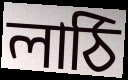
লাঠি